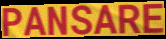
PANSARE